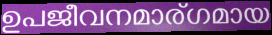
ഉപജീവനമാര്ഗമായ